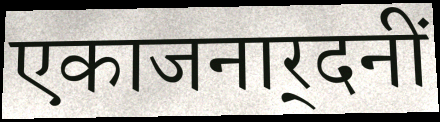
एकाजनार्दनीं